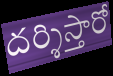
దర్శిస్తారో